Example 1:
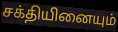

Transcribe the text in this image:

சக்தியினையும்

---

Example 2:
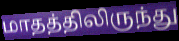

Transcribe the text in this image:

மாதத்திலிருந்து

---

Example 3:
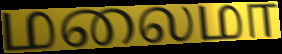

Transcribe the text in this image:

மலைமா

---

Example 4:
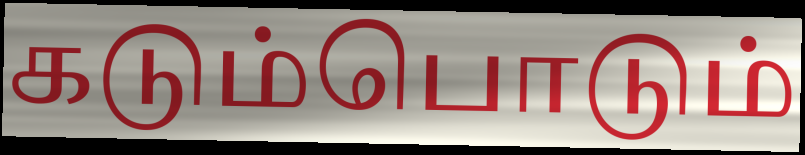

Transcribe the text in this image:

கடும்பொடும்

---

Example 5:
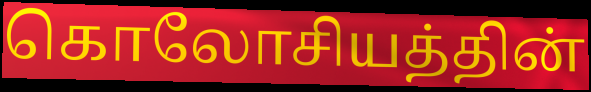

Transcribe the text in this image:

கொலோசியத்தின்